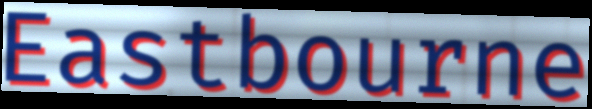
Eastbourne